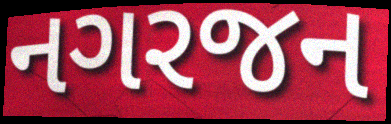
નગરજન